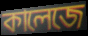
কালেজে